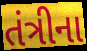
તંત્રીના